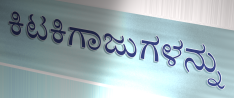
ಕಿಟಕಿಗಾಜುಗಳನ್ನು